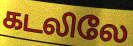
கடலிலே